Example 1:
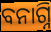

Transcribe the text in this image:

ବନାଗ୍ନି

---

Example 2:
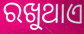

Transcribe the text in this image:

ରଖୁଥାଏ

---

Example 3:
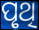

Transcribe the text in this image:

ପୃଥି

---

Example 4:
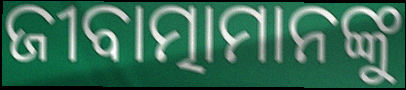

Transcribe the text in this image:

ଜୀବାତ୍ମାମାନଙ୍କୁ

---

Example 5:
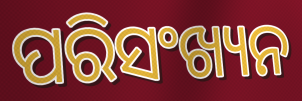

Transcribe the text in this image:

ପରିସଂଖ୍ୟନ